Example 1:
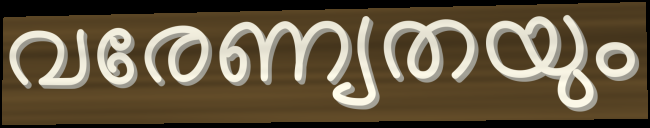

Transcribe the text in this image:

വരേണ്യതയും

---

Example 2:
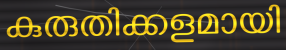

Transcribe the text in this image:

കുരുതിക്കളമായി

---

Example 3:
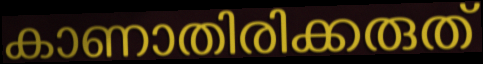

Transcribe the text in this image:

കാണാതിരിക്കരുത്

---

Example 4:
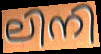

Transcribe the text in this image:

ലിനി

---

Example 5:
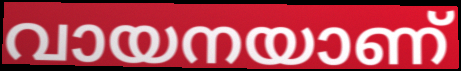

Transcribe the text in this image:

വായനയാണ്